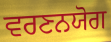
ਵਰਣਨਯੋਗ